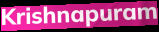
Krishnapuram